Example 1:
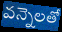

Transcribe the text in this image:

వన్నెలతో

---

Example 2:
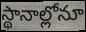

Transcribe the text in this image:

స్థానాల్లోనూ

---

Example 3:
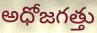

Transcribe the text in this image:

అధోజగత్తు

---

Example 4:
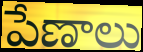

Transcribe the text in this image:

పేణాలు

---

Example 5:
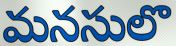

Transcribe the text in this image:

మనసులొ